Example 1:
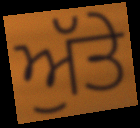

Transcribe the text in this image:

ਅੁੱਤੇ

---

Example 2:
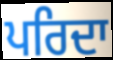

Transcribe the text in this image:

ਪਰਿਦਾ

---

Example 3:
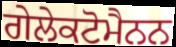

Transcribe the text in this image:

ਗੇਲੇਕਟੋਮੈਨਨ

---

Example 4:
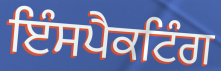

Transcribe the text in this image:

ਇੰਸਪੈਕਟਿੰਗ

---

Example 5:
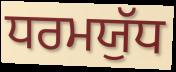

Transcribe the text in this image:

ਧਰਮਯੁੱਧ